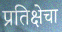
प्रतिक्षेचा